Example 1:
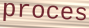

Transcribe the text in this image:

proces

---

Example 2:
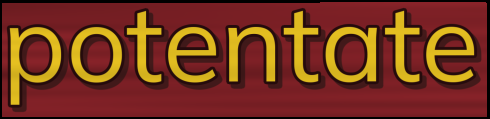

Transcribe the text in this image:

potentate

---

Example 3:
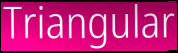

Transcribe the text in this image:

Triangular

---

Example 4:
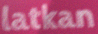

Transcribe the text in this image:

latkan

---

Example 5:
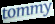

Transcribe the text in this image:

tommy